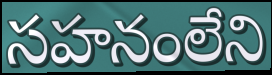
సహనంలేని